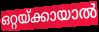
ഒറ്റയ്ക്കായാൽ